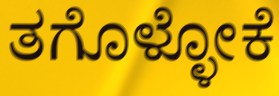
ತಗೊಳ್ಳೋಕೆ